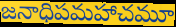
జనాధిపమహాచమూ